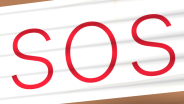
sos